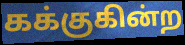
கக்குகின்ற